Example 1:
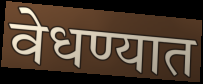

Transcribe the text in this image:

वेधण्यात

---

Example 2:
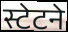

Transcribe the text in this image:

स्टेटने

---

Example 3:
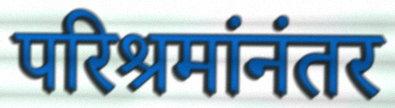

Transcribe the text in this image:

परिश्रमांनंतर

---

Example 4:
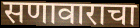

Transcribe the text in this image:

सणावाराचा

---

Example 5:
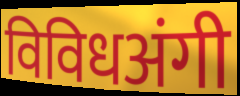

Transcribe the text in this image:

विविधअंगी